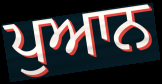
ਪੁਆਨ